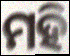
ମହି